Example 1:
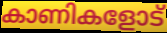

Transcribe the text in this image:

കാണികളോട്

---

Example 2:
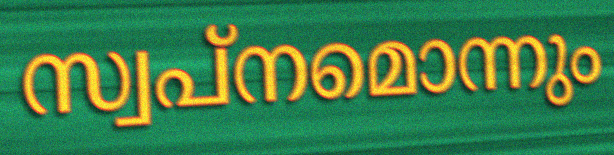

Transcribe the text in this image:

സ്വപ്നമൊന്നും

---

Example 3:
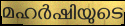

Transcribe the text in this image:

മഹർഷിയുടെ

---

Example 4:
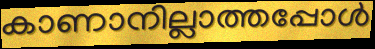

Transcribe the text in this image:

കാണാനില്ലാത്തപ്പോൾ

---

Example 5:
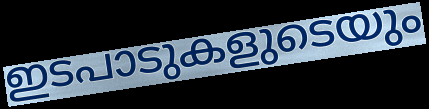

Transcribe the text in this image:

ഇടപാടുകളുടെയും